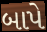
બાપે